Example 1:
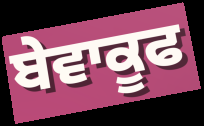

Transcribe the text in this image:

ਬੇਵਾਕੂਫ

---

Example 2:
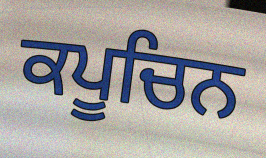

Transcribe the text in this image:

ਕਪੂਚਿਨ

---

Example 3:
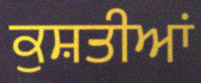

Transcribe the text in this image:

ਕੁਸ਼ਤੀਆਂ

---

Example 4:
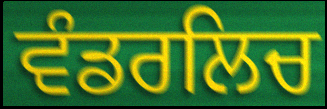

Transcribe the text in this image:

ਵੰਡਰਲਿਚ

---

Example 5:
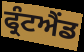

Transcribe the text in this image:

ਫ੍ਰੰਟਐਂਡ